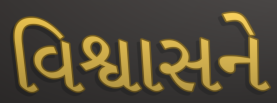
વિશ્વાસને